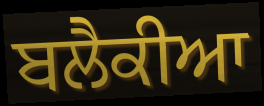
ਬਲੈਕੀਆ